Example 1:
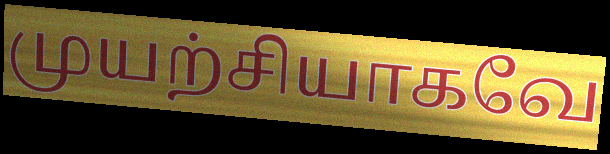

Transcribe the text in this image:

முயற்சியாகவே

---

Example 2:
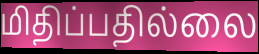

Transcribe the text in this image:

மிதிப்பதில்லை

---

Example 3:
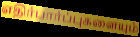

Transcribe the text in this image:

எதிர்பார்ப்புகளையும்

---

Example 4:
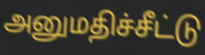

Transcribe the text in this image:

அனுமதிச்சீட்டு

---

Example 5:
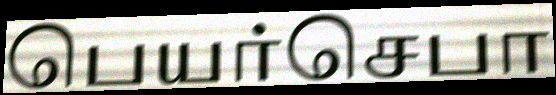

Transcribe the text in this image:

பெயர்செபா